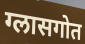
ग्लासगोत